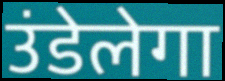
उंडेलेगा